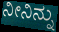
ನೀನಿನ್ನು